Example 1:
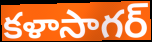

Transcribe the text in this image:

కళాసాగర్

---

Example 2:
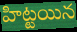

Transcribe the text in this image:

హిట్టయిన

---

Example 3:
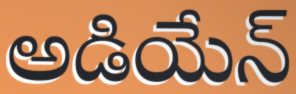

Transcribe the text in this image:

అడియేన్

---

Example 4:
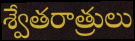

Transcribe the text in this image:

శ్వేతరాత్రులు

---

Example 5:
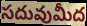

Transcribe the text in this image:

సదువుమీద